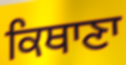
ਕਿਥਾਣਾ